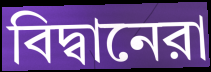
বিদ্বানেরা